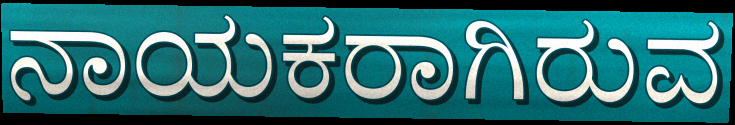
ನಾಯಕರಾಗಿರುವ